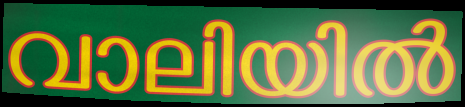
വാലിയിൽ